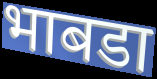
भाबडा